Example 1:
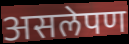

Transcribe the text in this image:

असलेपण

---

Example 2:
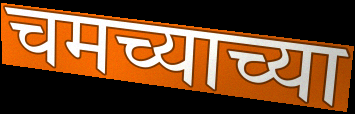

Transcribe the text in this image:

चमच्याच्या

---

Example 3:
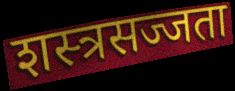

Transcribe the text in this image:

शस्त्रसज्जता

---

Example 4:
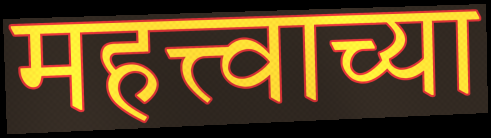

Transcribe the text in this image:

महत्त्वाच्या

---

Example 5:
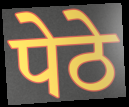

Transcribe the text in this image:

पेठे